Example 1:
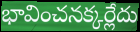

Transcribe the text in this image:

భావించనక్కర్లేదు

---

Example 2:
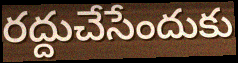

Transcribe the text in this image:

రద్దుచేసేందుకు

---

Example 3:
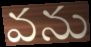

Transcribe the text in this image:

వను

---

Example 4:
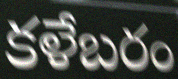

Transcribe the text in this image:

కళేబరం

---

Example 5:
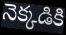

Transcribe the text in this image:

నెక్కడికి